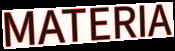
MATERIA